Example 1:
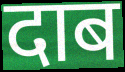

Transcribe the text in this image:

दाब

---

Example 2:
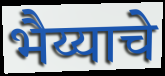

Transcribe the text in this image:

भैय्याचे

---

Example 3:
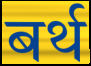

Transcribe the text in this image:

बर्थ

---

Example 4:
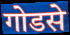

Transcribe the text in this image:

गोडसे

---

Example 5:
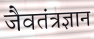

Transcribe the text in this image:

जैवतंत्रज्ञान